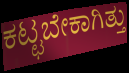
ಕಟ್ಟಬೇಕಾಗಿತ್ತು